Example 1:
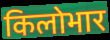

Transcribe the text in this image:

किलोभार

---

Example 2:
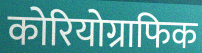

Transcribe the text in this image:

कोरियोग्राफिक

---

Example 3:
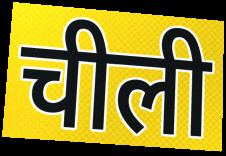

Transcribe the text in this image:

चीली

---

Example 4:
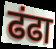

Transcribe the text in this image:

ढंढा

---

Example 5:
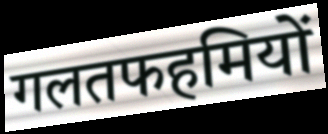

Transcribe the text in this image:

गलतफहमियों